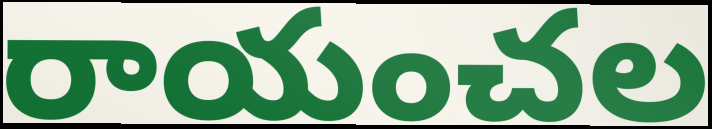
రాయంచల